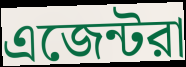
এজেন্টরা